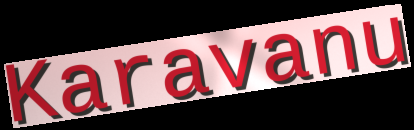
Karavanu